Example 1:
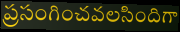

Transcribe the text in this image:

ప్రసంగించవలసిందిగా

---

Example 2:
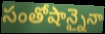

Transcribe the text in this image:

సంతోషాన్నైనా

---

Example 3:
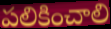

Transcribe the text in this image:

పలికించాలి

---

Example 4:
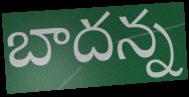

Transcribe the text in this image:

బాదన్న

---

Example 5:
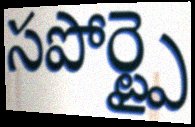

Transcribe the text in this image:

సపోర్ట్పై